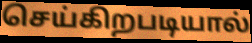
செய்கிறபடியால்